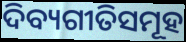
ଦିବ୍ୟଗୀତିସମୂହ